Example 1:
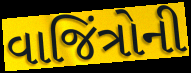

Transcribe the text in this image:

વાજિંત્રોની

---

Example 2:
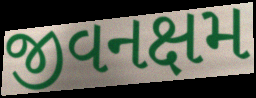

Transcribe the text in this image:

જીવનક્ષમ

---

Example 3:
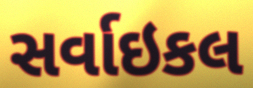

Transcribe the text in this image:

સર્વાઇકલ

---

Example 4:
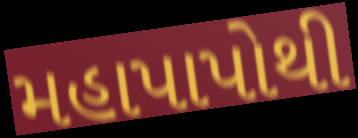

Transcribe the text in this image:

મહાપાપોથી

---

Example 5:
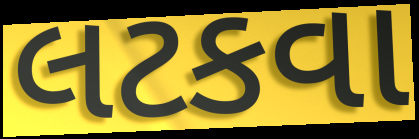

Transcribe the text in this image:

લટકવા